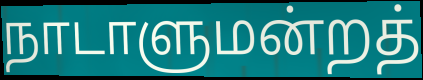
நாடாளுமன்றத்